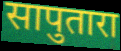
सापुतारा